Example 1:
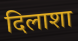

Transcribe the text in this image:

दिलाशा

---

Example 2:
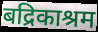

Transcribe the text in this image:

बद्रिकाश्रम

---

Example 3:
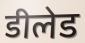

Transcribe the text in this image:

डीलेड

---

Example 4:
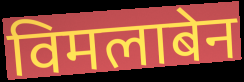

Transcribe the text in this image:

विमलाबेन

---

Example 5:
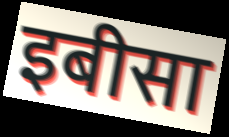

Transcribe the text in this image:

इबीसा